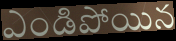
ఎండిపోయిన